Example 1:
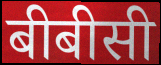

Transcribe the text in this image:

बीबीसी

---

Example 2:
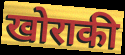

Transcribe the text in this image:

खोराकी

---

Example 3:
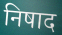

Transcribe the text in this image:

निषाद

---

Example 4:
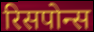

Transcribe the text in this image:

रिसपोन्स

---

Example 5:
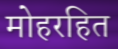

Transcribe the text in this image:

मोहरहित